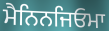
ਮੈਨਿਨਜਿਓਮਾ